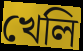
খেলি